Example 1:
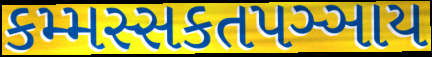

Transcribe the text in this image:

કમ્મસ્સકતપઞ્ઞાય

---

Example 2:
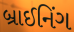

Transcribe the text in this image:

બ્રાઈનિંગ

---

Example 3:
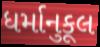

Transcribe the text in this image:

ધર્માનુકૂલ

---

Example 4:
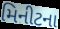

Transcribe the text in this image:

મિનીટના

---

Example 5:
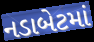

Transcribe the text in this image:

નડાબેટમાં